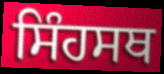
ਸਿੰਹਸਥ